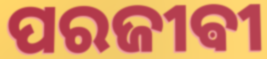
ପରଜୀଵୀ